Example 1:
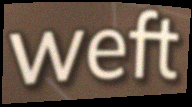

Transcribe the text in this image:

weft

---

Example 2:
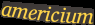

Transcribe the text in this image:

americium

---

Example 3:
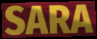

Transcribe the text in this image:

SARA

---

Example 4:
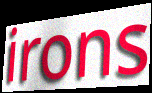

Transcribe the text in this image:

irons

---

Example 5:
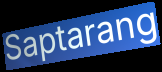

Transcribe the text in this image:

Saptarang